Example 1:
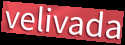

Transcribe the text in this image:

velivada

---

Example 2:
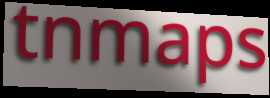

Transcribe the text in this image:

tnmaps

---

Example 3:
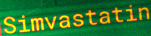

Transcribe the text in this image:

Simvastatin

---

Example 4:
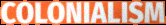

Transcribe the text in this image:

COLONIALISM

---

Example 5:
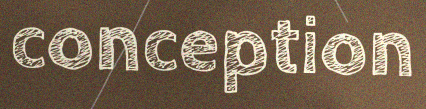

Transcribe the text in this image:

conception